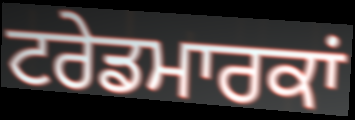
ਟਰੇਡਮਾਰਕਾਂ